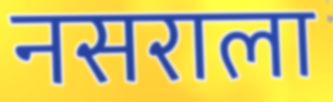
नसराला